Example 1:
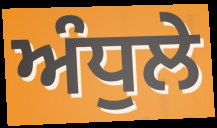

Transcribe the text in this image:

ਅੰਧੁਲੇ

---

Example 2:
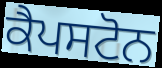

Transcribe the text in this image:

ਕੈਪਸਟੋਨ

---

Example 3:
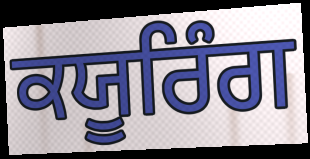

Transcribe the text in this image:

ਕਯੂਰਿੰਗ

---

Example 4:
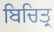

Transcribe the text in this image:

ਬਿਚਿਤ੍ਰ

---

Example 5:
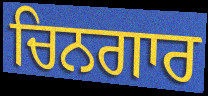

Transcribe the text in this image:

ਚਿਨਗਾਰ